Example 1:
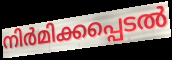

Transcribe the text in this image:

നിർമിക്കപ്പെടൽ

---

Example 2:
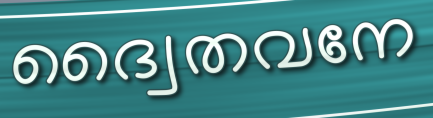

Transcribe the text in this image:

ദ്വൈതവനേ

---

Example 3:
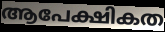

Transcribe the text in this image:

ആപേക്ഷികത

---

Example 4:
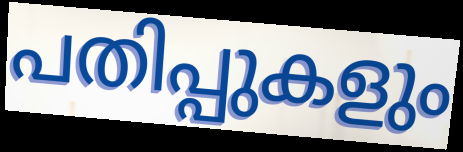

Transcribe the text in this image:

പതിപ്പുകളും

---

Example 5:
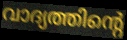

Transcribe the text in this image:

വാദ്യത്തിന്റെ